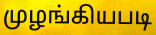
முழங்கியபடி